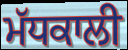
ਮੱਧਕਾਲੀ